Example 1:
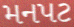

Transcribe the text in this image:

મનપટ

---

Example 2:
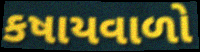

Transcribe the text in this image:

કષાયવાળો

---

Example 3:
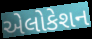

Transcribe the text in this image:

એલોકેશન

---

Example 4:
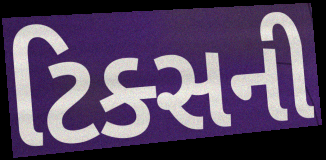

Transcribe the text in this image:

ટિક્સની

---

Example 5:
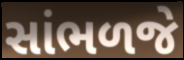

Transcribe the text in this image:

સાંભળજે